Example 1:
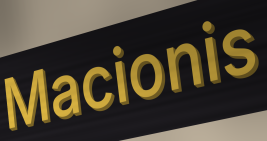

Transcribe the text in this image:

Macionis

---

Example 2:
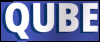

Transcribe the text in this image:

QUBE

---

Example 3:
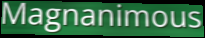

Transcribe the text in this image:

Magnanimous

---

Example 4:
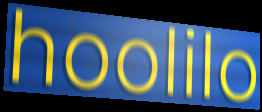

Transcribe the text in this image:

hoolilo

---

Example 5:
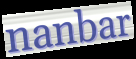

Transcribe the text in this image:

nanbar